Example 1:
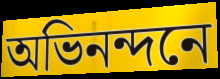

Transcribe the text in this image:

অভিনন্দনে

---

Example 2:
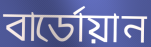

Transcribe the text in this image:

বার্ডোয়ান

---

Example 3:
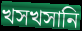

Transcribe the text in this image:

খসখসানি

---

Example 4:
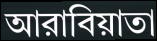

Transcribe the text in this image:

আরাবিয়াতা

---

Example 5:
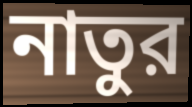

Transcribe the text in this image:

নাতুর